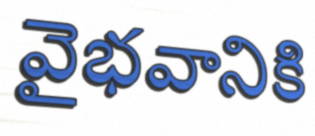
వైభవానికి